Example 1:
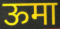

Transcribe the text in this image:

ऊमा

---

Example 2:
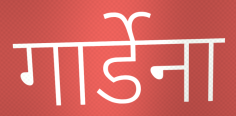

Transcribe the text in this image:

गार्डेना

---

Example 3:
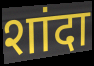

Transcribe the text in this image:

शांदा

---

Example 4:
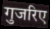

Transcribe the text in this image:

गुजरिए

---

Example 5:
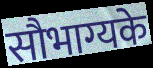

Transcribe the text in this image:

सौभाग्यके